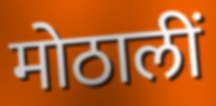
मोठालीं